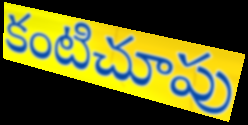
కంటిచూపు